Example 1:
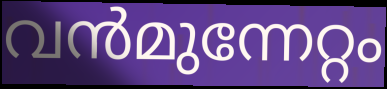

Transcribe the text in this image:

വൻമുന്നേറ്റം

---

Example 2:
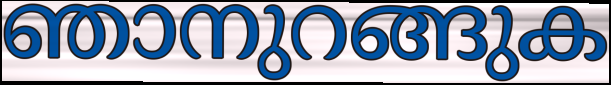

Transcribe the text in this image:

ഞാനുറങ്ങുക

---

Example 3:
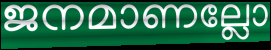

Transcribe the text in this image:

ജനമാണല്ലോ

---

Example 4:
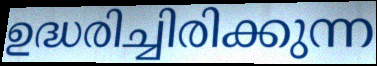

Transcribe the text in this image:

ഉദ്ധരിച്ചിരിക്കുന്ന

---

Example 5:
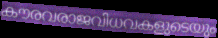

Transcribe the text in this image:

കൗരവരാജവിധവകളുടെയും